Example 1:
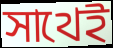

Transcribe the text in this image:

সাথেই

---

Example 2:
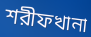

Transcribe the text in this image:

শরীফখানা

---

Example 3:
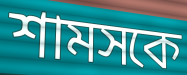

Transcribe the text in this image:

শামসকে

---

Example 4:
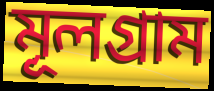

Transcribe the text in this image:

মূলগ্রাম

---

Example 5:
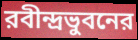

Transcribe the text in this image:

রবীন্দ্রভুবনের